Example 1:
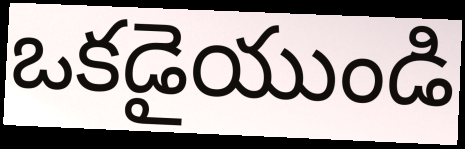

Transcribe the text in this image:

ఒకడైయుండి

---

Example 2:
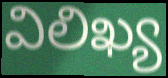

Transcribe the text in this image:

విలిఖ్య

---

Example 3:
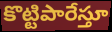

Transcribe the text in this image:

కొట్టిపారేస్తూ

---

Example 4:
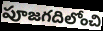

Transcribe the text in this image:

పూజగదిలోంచి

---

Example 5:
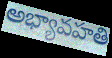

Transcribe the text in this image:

అభ్యావహతి